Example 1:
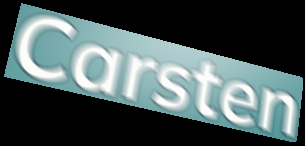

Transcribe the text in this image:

Carsten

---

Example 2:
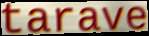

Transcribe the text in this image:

tarave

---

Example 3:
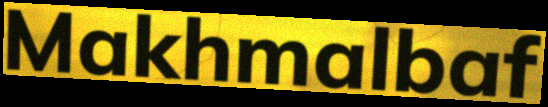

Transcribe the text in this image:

Makhmalbaf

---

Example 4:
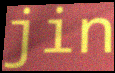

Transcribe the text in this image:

jin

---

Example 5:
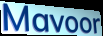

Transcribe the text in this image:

Mavoor